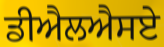
ਡੀਐਲਐਸਏ